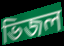
ভিজল